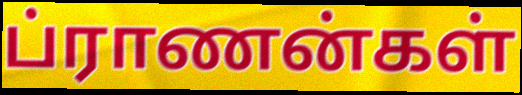
ப்ராணன்கள்